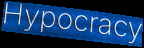
Hypocracy